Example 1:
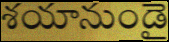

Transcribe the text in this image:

శయానుండై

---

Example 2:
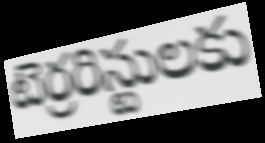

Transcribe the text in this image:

టెర్రరిస్టులకు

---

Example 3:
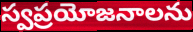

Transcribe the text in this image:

స్వప్రయోజనాలను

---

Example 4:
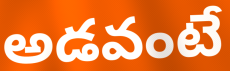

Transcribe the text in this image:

అడవంటే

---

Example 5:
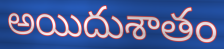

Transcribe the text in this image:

అయిదుశాతం